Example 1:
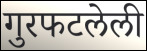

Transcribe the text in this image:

गुरफटलेली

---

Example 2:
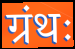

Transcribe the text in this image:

ग्रंथः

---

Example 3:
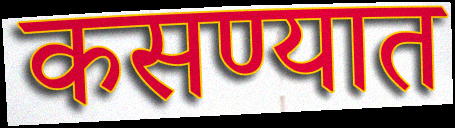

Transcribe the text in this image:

कसण्यात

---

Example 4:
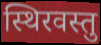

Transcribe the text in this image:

स्थिरवस्तु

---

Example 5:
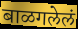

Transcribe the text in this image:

बाळगलेलं